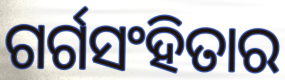
ଗର୍ଗସଂହିତାର